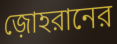
জ়োহরানের